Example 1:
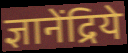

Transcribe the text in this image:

ज्ञानेंद्रिये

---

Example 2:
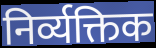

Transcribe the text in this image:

निर्व्यक्तिक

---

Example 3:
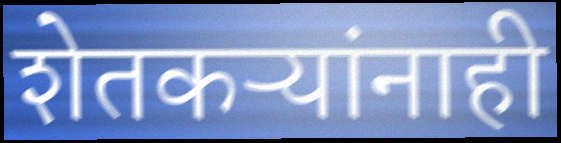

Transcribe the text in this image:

शेतकऱ्यांनाही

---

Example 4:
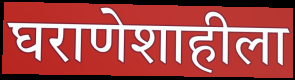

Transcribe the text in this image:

घराणेशाहीला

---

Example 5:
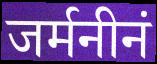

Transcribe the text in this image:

जर्मनीनं